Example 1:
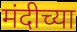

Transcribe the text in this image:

मंदीच्या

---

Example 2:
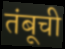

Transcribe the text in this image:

तंबूची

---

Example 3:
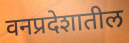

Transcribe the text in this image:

वनप्रदेशातील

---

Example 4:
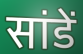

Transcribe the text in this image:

सांडें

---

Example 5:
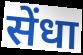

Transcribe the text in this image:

सेंधा